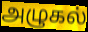
அழுகல்